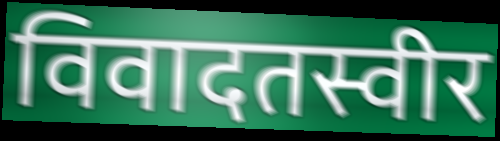
विवादतस्वीर